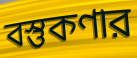
বস্তুকণার